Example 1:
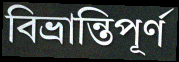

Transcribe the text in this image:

বিভ্রান্তিপূর্ণ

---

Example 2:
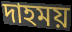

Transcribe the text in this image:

দাহময়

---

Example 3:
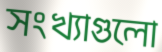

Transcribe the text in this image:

সংখ্যাগুলো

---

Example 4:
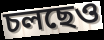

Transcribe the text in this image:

চলছেও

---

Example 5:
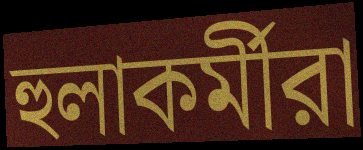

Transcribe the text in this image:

হুলাকর্মীরা